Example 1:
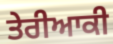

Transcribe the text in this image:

ਤੇਰੀਆਕੀ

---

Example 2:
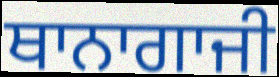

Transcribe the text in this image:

ਥਾਨਾਗਾਜੀ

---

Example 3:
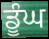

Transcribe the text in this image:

ਡੂੰਘ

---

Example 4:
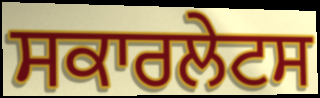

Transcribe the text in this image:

ਸਕਾਰਲੇਟਸ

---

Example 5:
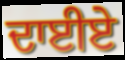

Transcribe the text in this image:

ਦਾਈਏ